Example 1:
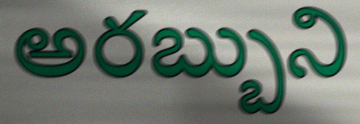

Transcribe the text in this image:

అరబ్బుని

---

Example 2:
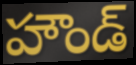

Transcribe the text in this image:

హౌండ్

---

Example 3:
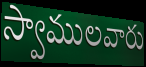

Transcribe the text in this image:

స్వాములవారు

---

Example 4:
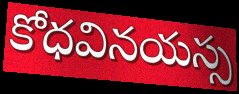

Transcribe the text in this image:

కోధవినయస్స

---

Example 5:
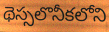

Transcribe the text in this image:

థెస్సలొనీకలోని